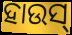
ହାଉସ୍